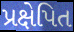
પ્રક્ષેપિત